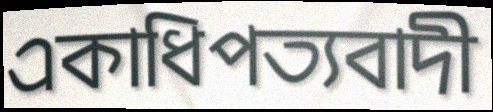
একাধিপত্যবাদী